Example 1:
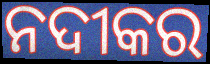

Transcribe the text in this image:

ନଦୀକର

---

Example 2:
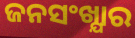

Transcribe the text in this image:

ଜନସଂଖ୍ଯାର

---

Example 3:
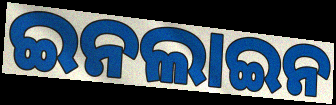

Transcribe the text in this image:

ଇନଲାଇନ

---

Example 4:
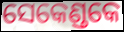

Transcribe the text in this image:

ସେକେଣ୍ଡକେ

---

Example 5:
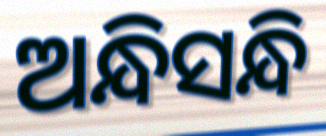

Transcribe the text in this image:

ଅନ୍ଧିସନ୍ଧି